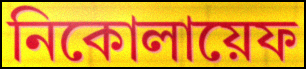
নিকোলায়েফ